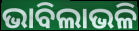
ଭାବିଲାଭଳି